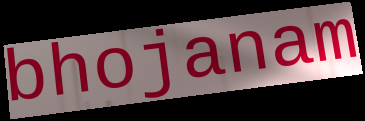
bhojanam